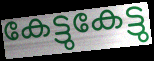
കേട്ടുകേട്ടു